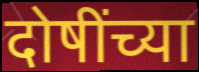
दोषींच्या